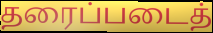
தரைப்படைத்